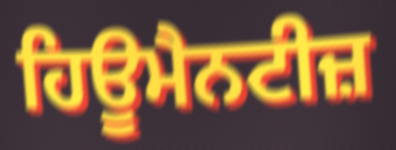
ਹਿਊਮੈਨਟੀਜ਼